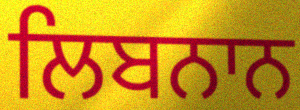
ਲਿਬਨਾਨ